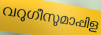
വറുഗീസുമാപ്പിള